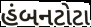
હંબનટોટા